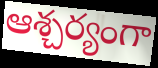
ఆశ్చర్యంగా